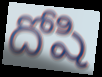
దోషి